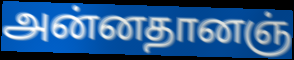
அன்னதானஞ்